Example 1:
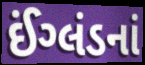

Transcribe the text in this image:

ઈંગ્લંડનાં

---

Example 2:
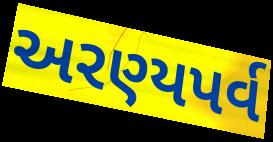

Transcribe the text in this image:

અરણ્યપર્વ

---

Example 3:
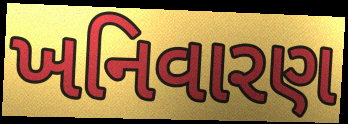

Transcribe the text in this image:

ખનિવારણ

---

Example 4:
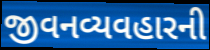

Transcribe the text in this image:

જીવનવ્યવહારની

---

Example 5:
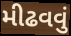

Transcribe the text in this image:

મીઢવવું